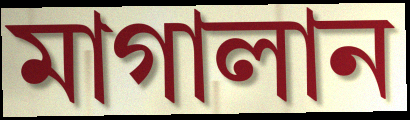
মাগালান